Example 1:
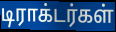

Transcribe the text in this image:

டிராக்டர்கள்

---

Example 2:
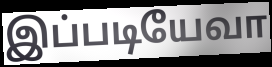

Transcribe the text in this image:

இப்படியேவா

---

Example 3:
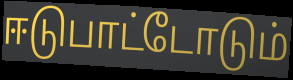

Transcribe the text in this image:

ஈடுபாட்டோடும்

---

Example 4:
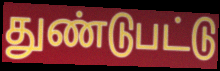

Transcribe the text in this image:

துண்டுபட்டு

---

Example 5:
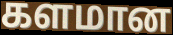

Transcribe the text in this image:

களமான